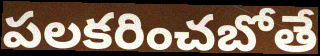
పలకరించబోతే